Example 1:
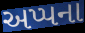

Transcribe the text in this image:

અપ્પના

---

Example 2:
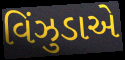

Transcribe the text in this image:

વિંઝુડાએ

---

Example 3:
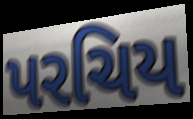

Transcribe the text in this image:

પરચિય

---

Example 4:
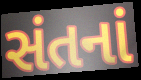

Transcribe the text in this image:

સંતનાં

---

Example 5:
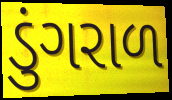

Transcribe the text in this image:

ડુંગરાળ